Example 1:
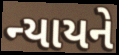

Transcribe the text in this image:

ન્યાયને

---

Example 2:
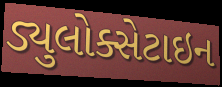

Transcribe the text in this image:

ડ્યુલોક્સેટાઇન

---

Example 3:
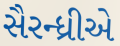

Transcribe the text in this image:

સૈરન્ધ્રીએ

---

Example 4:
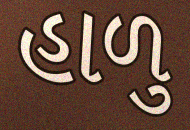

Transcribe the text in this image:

હાળુ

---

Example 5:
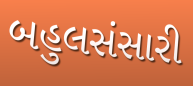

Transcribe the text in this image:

બહુલસંસારી